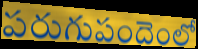
పరుగుపందెంలో